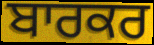
ਬਾਰਕਰ